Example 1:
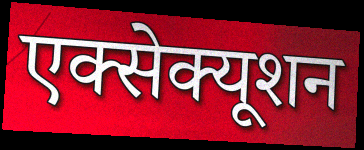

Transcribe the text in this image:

एक्सेक्यूशन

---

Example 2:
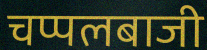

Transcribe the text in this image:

चप्पलबाजी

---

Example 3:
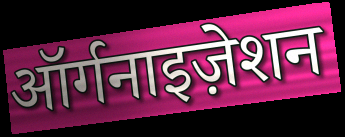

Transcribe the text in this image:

ऑर्गनाइज़ेशन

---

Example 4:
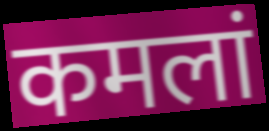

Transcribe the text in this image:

कमलां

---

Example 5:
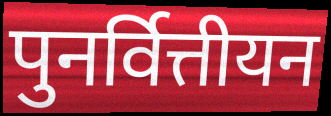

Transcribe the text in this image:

पुनर्वित्तीयन